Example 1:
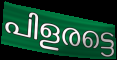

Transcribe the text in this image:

പിളരട്ടെ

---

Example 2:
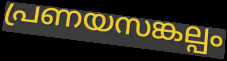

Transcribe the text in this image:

പ്രണയസങ്കല്പം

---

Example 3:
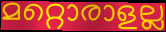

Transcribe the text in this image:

മറ്റൊരാളല്ല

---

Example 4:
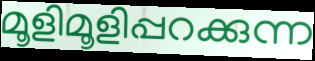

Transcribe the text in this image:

മൂളിമൂളിപ്പറക്കുന്ന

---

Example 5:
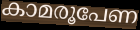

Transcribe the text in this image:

കാമരൂപേണ